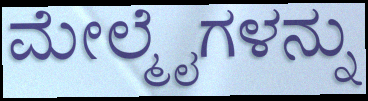
ಮೇಲ್ಮೈಗಳನ್ನು